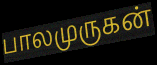
பாலமுருகன்